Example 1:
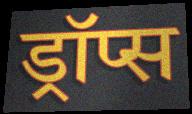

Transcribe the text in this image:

ड्रॉप्‍स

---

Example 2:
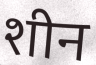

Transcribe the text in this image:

शीन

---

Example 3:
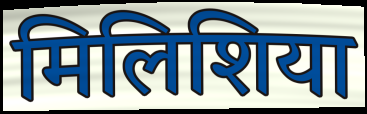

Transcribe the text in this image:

मिलिशिया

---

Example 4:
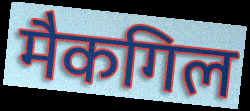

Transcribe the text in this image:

मैकगिल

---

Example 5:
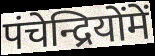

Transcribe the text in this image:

पंचेन्द्रियोंमें